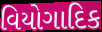
વિયોગાદિક